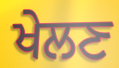
ਖੇਲਣ